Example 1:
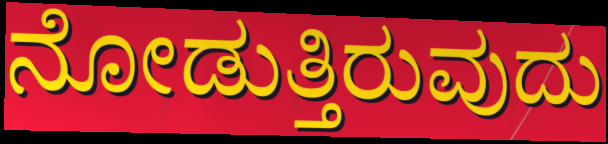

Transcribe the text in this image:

ನೋಡುತ್ತಿರುವುದು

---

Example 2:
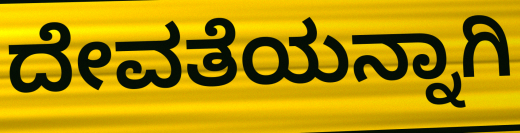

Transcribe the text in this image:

ದೇವತೆಯನ್ನಾಗಿ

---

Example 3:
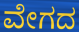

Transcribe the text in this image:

ವೇಗದ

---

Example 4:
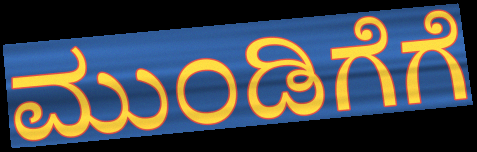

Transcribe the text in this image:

ಮುಂಡಿಗೆಗೆ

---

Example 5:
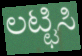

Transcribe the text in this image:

ಲಟ್ಟಿಸಿ